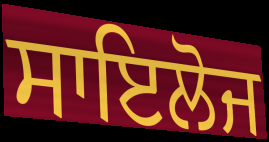
ਸਾਇਲੋਜ